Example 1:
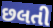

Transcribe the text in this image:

છલતી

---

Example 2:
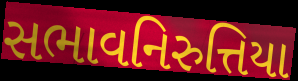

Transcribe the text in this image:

સભાવનિરુત્તિયા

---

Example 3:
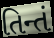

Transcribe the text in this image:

તિન્તં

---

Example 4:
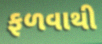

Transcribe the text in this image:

ફળવાથી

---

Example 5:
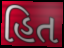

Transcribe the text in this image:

હિત